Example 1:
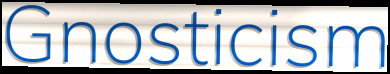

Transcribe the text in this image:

Gnosticism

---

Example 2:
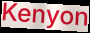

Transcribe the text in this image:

Kenyon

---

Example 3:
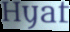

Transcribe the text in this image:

Hyat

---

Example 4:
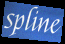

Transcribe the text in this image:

spline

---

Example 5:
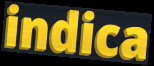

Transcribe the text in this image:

indica